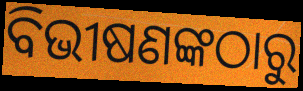
ବିଭୀଷଣଙ୍କଠାରୁ